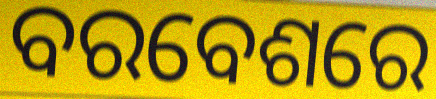
ବରବେଶରେ